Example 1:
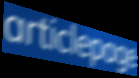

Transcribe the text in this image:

articlepage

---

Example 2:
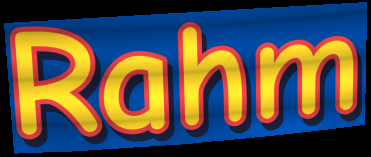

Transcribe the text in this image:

Rahm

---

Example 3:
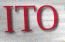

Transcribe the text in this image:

ITO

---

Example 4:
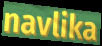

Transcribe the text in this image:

navlika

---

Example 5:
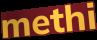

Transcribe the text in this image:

methi